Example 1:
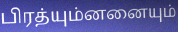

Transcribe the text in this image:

பிரத்யும்னனையும்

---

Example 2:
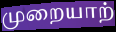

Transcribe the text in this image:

முறையாற்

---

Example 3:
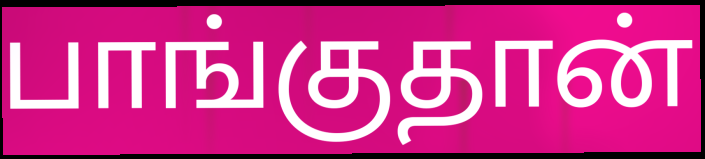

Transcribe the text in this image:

பாங்குதான்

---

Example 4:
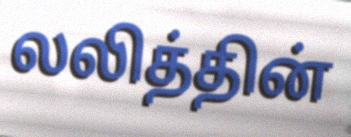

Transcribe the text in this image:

லலித்தின்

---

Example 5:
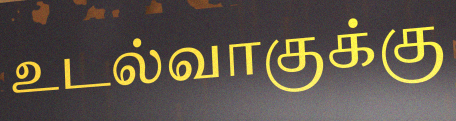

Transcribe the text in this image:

உடல்வாகுக்கு